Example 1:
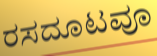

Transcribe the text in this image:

ರಸದೂಟವೂ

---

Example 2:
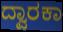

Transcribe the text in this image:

ದ್ವಾರಕಾ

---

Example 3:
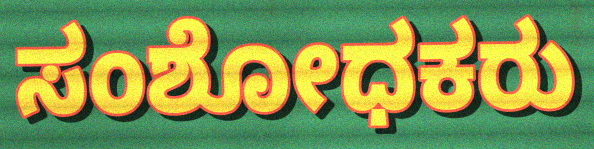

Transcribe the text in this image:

ಸಂಶೋಧಕರು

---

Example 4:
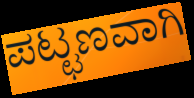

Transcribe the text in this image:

ಪಟ್ಟಣವಾಗಿ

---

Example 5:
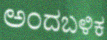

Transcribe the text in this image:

ಅಂದಬಳಿಕ